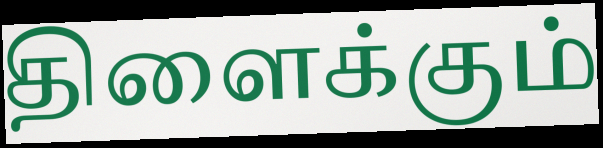
திளைக்கும்